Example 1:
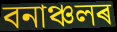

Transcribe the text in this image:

বনাঞ্চলৰ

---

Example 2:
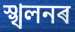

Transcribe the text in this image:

স্খলনৰ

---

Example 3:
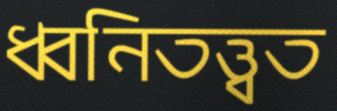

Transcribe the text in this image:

ধ্বনিতত্ত্বত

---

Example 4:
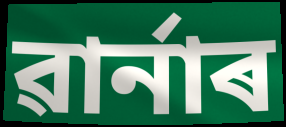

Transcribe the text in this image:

ৱাৰ্নাৰ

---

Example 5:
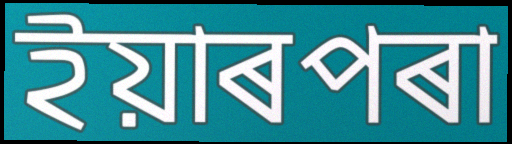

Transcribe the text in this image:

ইয়াৰপৰা